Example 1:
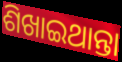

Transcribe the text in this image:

ଶିଖାଇଥାନ୍ତା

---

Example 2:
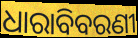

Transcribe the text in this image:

ଧାରାବିବରଣୀ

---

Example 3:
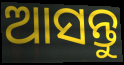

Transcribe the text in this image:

ଆସନ୍ତୁ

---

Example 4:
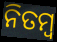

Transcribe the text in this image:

ନିତମ୍ୱ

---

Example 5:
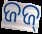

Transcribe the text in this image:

ଜଜ୍